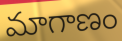
మాగాణం